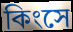
কিংসে